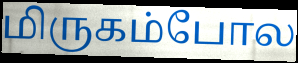
மிருகம்போல